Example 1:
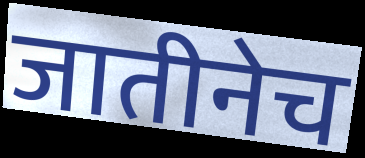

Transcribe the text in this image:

जातीनेच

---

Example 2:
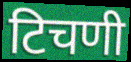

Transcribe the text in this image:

टिचणी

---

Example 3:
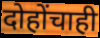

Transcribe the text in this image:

दोहोंचाही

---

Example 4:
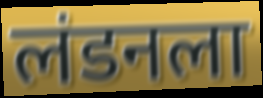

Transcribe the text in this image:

लंडनला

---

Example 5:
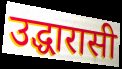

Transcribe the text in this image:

उद्धारासी